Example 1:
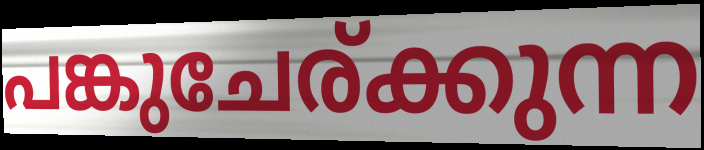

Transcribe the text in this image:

പങ്കുചേര്ക്കുന്ന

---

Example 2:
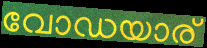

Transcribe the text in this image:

വോഡയാര്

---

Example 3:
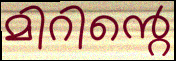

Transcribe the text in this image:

മിറിന്റെ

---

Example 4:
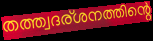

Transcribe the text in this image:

തത്ത്വദര്ശനത്തിന്റെ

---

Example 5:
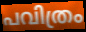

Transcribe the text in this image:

പവിത്രം